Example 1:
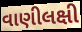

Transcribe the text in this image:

વાણીલક્ષી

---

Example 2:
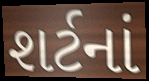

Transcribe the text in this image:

શર્ટનાં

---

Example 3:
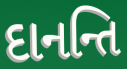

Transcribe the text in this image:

દાનન્તિ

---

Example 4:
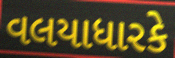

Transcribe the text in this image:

વલયાધારકે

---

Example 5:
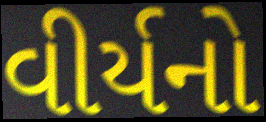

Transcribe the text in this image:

વીર્યનો